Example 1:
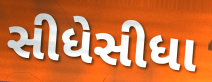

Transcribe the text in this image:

સીધેસીધા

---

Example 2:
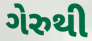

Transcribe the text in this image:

ગેરુથી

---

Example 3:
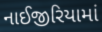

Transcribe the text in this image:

નાઈજીરિયામાં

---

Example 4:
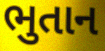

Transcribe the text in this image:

ભુતાન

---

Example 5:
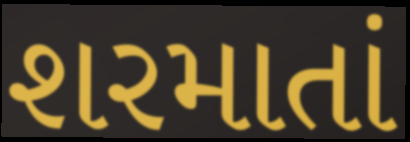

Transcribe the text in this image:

શરમાતાં